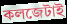
কলজেটাই